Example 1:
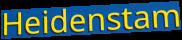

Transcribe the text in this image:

Heidenstam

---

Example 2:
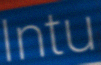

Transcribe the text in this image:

Intu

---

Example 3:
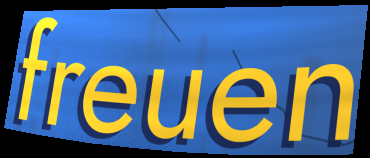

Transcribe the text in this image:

freuen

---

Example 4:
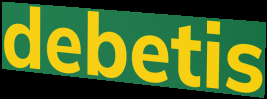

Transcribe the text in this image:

debetis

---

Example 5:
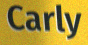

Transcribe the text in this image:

Carly